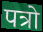
पत्रो